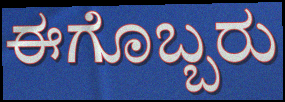
ಈಗೊಬ್ಬರು